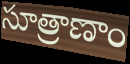
సూత్రాణాం